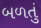
બળતું